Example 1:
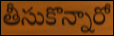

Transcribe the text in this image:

తీసుకొన్నారో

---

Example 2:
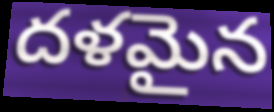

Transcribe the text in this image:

దళమైన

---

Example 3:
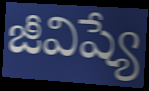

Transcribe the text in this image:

జీవిష్యే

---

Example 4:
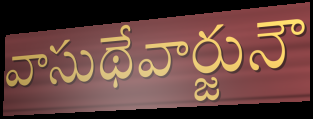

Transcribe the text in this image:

వాసుథేవార్జునౌ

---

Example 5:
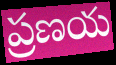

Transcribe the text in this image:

ప్రణయ